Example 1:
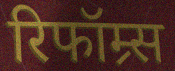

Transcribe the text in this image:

रिफॉम्र्स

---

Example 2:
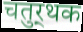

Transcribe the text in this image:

चतुर्थक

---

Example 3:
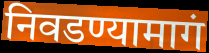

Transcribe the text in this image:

निवडण्यामागं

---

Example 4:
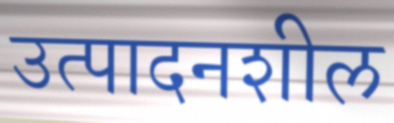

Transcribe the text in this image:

उत्पादनशील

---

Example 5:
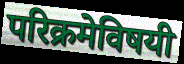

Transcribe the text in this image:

परिक्रमेविषयी